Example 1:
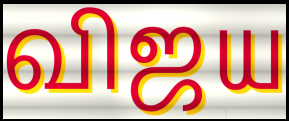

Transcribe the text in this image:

விஜய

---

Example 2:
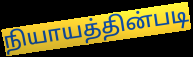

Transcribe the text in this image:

நியாயத்தின்படி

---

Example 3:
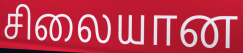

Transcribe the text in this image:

சிலையான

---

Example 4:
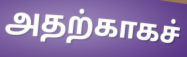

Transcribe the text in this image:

அதற்காகச்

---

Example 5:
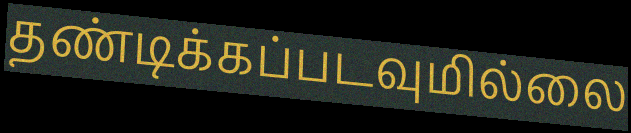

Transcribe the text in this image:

தண்டிக்கப்படவுமில்லை